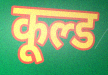
कूल्ड